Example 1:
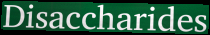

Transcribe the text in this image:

Disaccharides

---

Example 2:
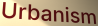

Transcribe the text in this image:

Urbanism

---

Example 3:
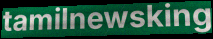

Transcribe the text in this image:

tamilnewsking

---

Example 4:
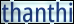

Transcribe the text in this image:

thanthi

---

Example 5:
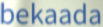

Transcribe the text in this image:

bekaada